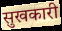
सुखकारी